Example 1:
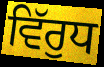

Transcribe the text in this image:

ਵਿੱਰੁਧ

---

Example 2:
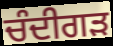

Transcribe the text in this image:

ਚੰਦੀਗੜ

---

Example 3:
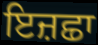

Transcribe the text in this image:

ਇਜ਼ਛਾ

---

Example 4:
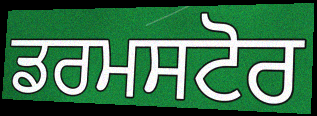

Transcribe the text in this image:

ਡਰਮਸਟੋਰ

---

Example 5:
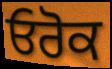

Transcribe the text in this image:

ਓਰੋਕ